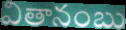
వితానంబు